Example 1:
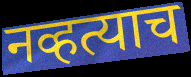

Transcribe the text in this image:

नव्हत्याच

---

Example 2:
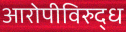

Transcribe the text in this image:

आरोपीविरुद्ध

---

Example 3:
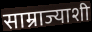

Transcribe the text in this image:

साम्राज्याशी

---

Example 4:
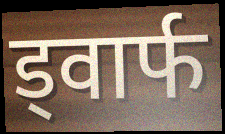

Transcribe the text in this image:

ड्वार्फ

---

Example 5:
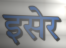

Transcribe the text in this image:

इसेर